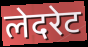
लेदरेट